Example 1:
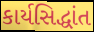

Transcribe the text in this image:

કાર્યસિદ્ધાંત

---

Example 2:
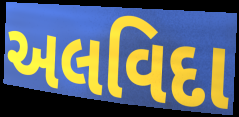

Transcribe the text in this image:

અલવિદા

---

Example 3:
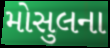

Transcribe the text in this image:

મોસુલના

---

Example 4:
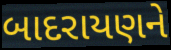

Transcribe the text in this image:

બાદરાયણને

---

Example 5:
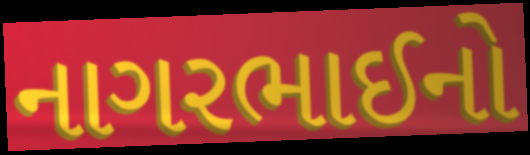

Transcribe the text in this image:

નાગરભાઈનો